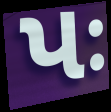
પઃ